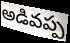
అడివప్ప